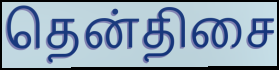
தென்திசை